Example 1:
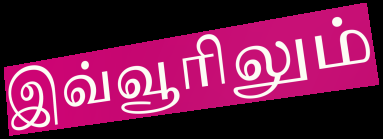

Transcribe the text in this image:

இவ்வூரிலும்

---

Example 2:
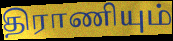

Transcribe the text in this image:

திராணியும்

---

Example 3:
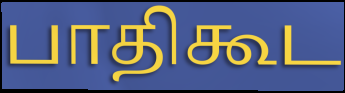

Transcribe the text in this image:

பாதிகூட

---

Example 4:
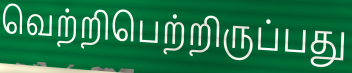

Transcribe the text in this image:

வெற்றிபெற்றிருப்பது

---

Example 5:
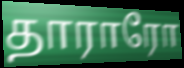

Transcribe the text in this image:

தாராரோ